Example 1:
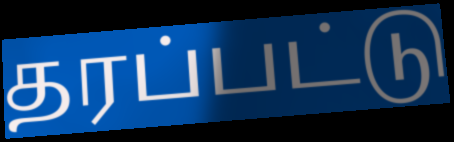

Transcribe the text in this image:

தரப்பட்டு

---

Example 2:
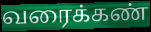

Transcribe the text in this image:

வரைக்கண்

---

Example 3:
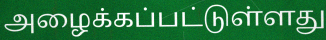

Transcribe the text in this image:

அழைக்கப்பட்டுள்ளது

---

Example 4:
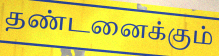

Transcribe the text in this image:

தண்டனைக்கும்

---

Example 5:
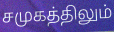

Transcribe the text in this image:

சமுகத்திலும்